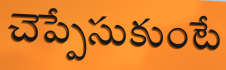
చెప్పేసుకుంటే